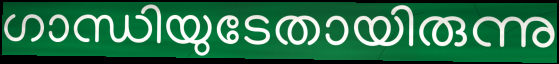
ഗാന്ധിയുടേതായിരുന്നു